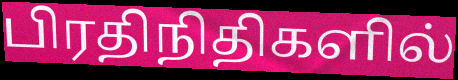
பிரதிநிதிகளில்